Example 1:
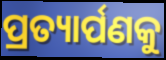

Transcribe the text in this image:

ପ୍ରତ୍ୟାର୍ପଣକୁ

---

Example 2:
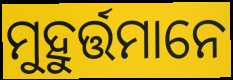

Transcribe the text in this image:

ମୁହୁର୍ତ୍ତମାନେ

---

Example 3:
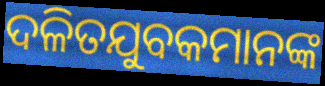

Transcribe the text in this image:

ଦଳିତଯୁବକମାନଙ୍କ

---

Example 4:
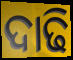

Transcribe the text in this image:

ଦାଢି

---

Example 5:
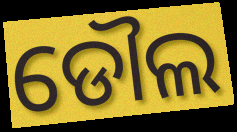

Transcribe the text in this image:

ଡୌଲ